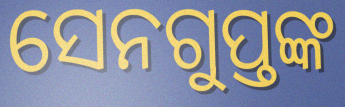
ସେନଗୁପ୍ତଙ୍କ